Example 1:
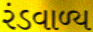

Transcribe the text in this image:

રંડવાળ્ય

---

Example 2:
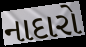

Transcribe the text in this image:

નાદારો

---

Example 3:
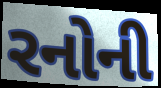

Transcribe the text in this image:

રનોની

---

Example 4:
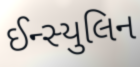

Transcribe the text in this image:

ઈન્સ્યુલિન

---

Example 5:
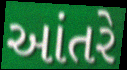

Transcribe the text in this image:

આંતરે